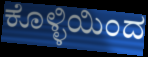
ಕೊಳ್ಳಿಯಿಂದ